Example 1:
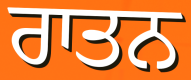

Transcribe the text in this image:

ਰਾਤਨ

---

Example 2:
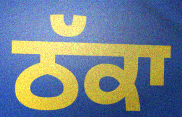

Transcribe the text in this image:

ਠੱਕਾ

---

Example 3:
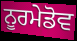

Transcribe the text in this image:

ਨੂਰਮੇਡੋਵ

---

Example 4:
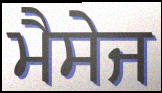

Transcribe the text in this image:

ਮੈਸੇਜ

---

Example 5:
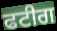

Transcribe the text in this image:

ਫਟੀਗ